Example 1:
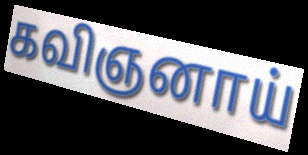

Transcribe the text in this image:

கவிஞனாய்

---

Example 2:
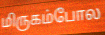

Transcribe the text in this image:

மிருகம்போல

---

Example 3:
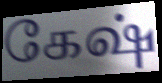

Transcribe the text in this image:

கேஷ்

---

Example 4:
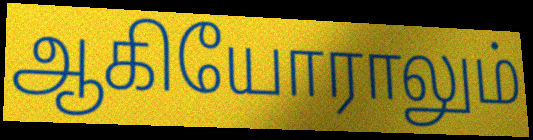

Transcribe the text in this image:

ஆகியோராலும்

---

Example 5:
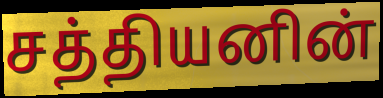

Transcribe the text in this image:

சத்தியனின்